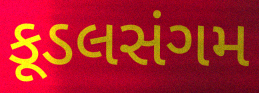
કૂડલસંગમ